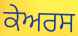
ਕੇਅਰਸ